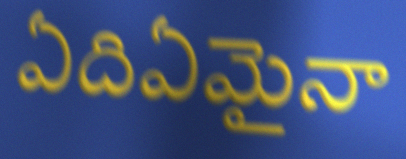
ఏదిఏమైనా